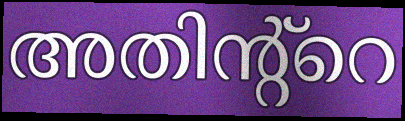
അതിന്റ്റെ